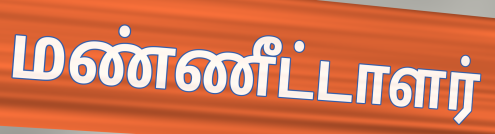
மண்ணீட்டாளர்